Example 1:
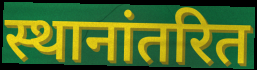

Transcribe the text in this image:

स्थानांतरित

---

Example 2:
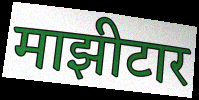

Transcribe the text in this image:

माझीटार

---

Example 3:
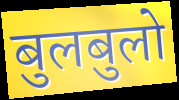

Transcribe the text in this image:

बुलबुलो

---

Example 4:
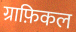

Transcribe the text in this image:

ग्राफ़िकल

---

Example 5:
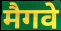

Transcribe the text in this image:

मैगवे